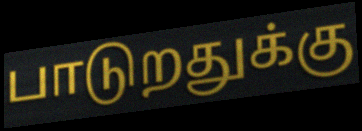
பாடுறதுக்கு